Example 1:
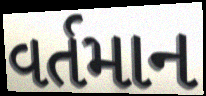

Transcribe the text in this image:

વર્તમાન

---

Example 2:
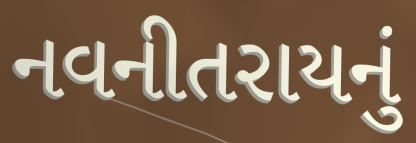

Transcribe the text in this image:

નવનીતરાયનું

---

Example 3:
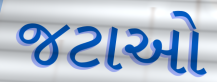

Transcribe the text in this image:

જટાઓ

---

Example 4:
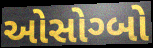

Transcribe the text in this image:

ઓસોગ્બો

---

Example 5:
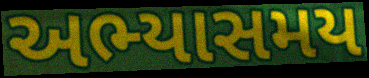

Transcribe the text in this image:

અભ્યાસમય